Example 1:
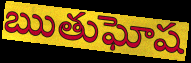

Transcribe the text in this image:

ఋతుఘోష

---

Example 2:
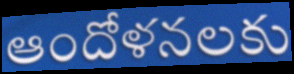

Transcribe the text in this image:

ఆందోళనలకు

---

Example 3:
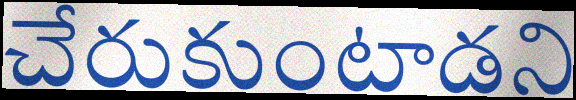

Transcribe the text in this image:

చేరుకుంటాడని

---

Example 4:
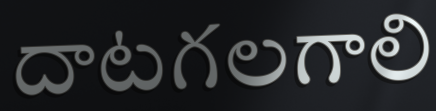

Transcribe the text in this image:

దాటగలగాలి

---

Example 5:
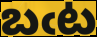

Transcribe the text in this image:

బఁట